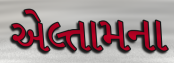
એલ્તામના